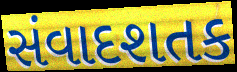
સંવાદશતક